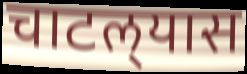
चाटल्यास